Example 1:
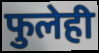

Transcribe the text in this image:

फुलेही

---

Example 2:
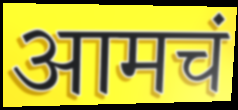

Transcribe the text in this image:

आमचं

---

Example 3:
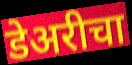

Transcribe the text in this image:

डेअरीचा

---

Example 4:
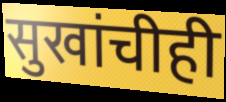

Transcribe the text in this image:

सुखांचीही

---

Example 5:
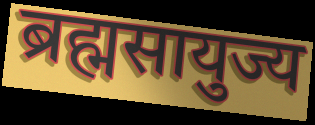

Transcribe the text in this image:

ब्रह्मसायुज्य